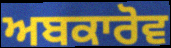
ਅਬਕਾਰੋਵ